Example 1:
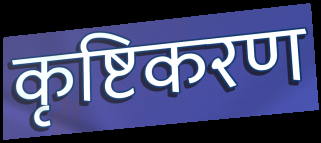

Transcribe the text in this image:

कृष्टिकरण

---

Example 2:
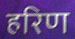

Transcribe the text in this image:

हरिण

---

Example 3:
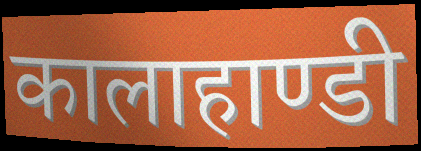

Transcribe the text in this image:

कालाहाण्डी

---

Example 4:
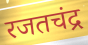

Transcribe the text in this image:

रजतचंद्र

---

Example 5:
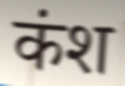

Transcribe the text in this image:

कंश